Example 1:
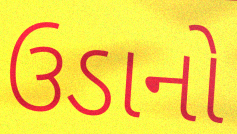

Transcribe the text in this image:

ઉડાનો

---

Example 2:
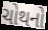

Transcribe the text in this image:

ચોથનો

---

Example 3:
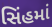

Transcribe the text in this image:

સિંહમાં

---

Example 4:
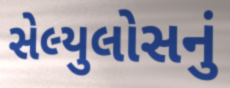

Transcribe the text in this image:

સેલ્યુલોસનું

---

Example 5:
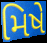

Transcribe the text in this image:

મિષે